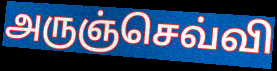
அருஞ்செவ்வி